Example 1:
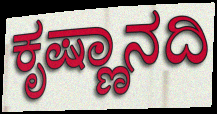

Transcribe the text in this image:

ಕೃಷ್ಣಾನದಿ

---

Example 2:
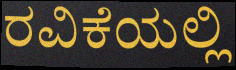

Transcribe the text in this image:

ರವಿಕೆಯಲ್ಲಿ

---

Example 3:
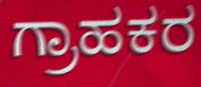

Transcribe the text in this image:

ಗ್ರಾಹಕರ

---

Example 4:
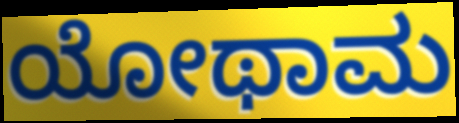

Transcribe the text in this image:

ಯೋಥಾಮ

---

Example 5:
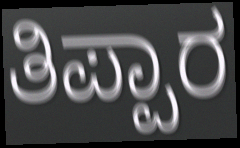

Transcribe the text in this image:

ತಿಪ್ಪಾರ